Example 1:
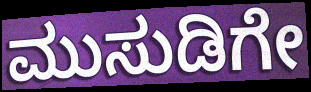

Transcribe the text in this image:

ಮುಸುಡಿಗೇ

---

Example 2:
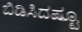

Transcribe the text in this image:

ಬಿಡಿಸಿದಷ್ಟೂ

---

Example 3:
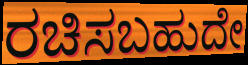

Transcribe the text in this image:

ರಚಿಸಬಹುದೇ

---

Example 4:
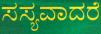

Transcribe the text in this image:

ಸಸ್ಯವಾದರೆ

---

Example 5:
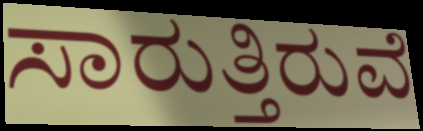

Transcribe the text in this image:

ಸಾರುತ್ತಿರುವೆ